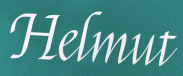
Helmut